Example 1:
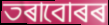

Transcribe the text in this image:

তৰাবোৰৰ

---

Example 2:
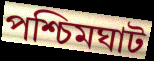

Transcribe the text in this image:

পশ্চিমঘাট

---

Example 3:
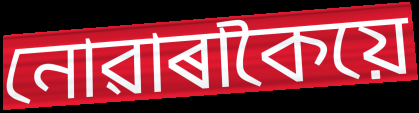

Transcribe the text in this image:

নোৱাৰাকৈয়ে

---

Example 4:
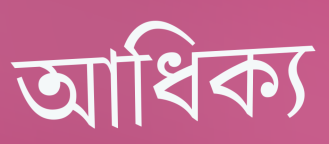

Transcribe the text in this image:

আধিক্য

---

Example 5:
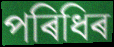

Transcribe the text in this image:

পৰিধিৰ